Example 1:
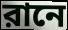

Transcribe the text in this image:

রানে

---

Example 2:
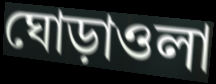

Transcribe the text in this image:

ঘোড়াওলা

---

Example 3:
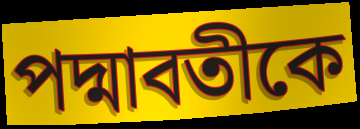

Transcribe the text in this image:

পদ্মাবতীকে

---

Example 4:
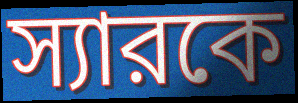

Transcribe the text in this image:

স্যারকে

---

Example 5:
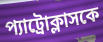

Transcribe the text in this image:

প্যাট্রোক্লাসকে